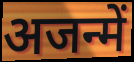
अजन्में